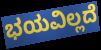
ಭಯವಿಲ್ಲದೆ